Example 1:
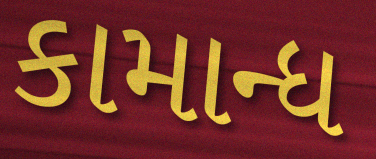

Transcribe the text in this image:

કામાન્ધ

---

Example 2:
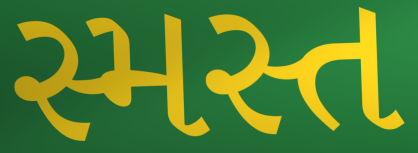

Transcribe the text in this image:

સ્મસ્ત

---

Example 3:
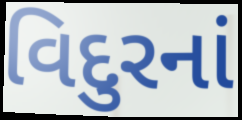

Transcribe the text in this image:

વિદુરનાં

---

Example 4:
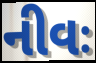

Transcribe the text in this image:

નીવઃ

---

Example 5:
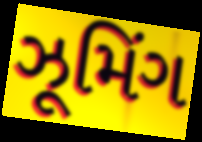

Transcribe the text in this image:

ઝૂમિંગ